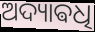
ଅଦ୍ୟାଵଧି